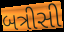
બત્રીસી